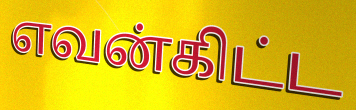
எவன்கிட்ட